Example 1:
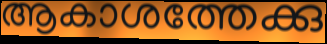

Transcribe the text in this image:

ആകാശത്തേക്കു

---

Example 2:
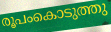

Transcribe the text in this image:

രൂപംകൊടുത്തു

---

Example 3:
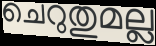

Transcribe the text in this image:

ചെറുതുമല്ല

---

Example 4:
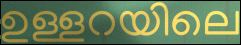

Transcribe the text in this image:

ഉള്ളറയിലെ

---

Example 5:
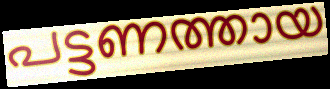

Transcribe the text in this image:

പട്ടണത്തായ